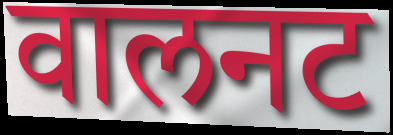
वालनट